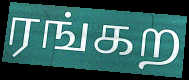
ரங்கற